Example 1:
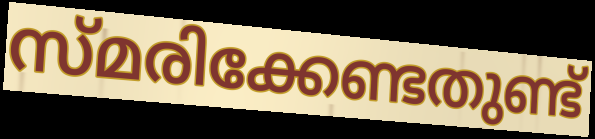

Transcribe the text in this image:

സ്മരിക്കേണ്ടതുണ്ട്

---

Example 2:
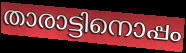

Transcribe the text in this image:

താരാട്ടിനൊപ്പം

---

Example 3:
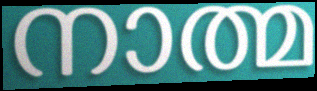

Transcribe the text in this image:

നാത്മ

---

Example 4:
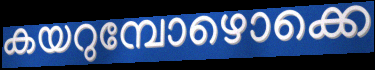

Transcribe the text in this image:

കയറുമ്പോഴൊക്കെ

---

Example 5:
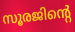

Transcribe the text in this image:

സൂരജിന്റെ